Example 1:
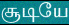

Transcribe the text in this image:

சூடியே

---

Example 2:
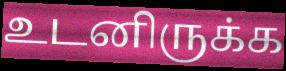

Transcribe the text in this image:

உடனிருக்க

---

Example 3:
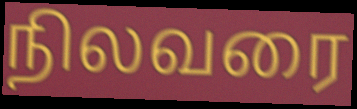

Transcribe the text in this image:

நிலவரை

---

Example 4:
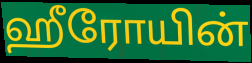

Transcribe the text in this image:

ஹீரோயின்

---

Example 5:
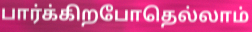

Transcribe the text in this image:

பார்க்கிறபோதெல்லாம்